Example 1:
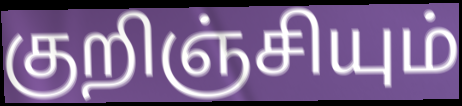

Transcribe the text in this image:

குறிஞ்சியும்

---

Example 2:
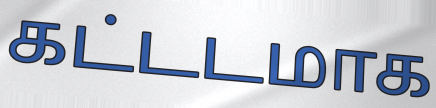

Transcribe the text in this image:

கட்டடமாக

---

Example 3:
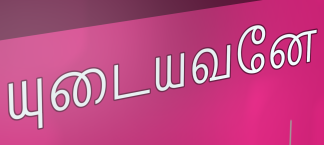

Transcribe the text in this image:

யுடையவனே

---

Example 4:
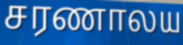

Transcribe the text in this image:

சரணாலய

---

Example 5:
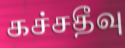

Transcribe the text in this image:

கச்சதீவு